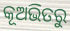
କୂଅଭିତରୁ